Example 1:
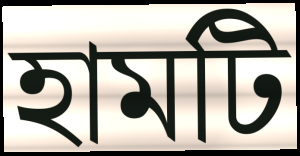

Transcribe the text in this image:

হামটি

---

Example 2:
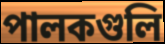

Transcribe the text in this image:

পালকগুলি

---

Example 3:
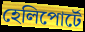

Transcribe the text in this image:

হেলিপোর্টে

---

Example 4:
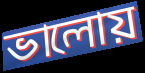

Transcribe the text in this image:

ভালোয়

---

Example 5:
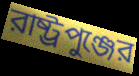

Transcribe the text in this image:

রাষ্ট্রপুঞ্জের